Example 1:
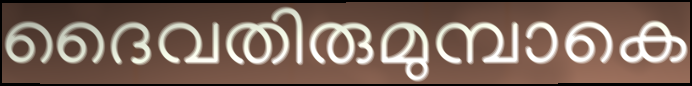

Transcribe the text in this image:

ദൈവതിരുമുമ്പാകെ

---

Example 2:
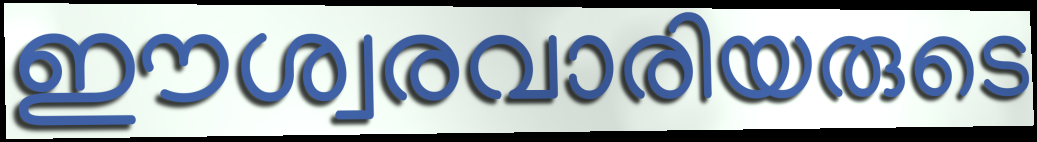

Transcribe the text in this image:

ഈശ്വരവാരിയരുടെ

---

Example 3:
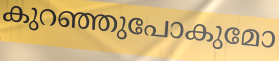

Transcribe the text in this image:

കുറഞ്ഞുപോകുമോ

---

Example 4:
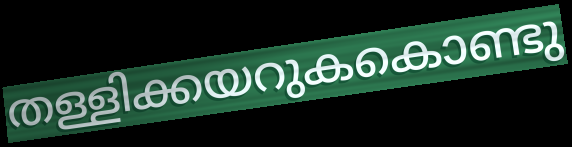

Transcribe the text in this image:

തള്ളിക്കയറുകകൊണ്ടു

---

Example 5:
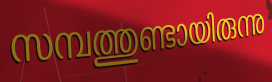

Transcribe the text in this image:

സമ്പത്തുണ്ടായിരുന്നു